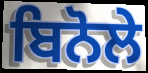
ਬਿਨੋਲੇ